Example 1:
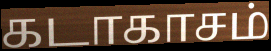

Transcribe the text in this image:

கடாகாசம்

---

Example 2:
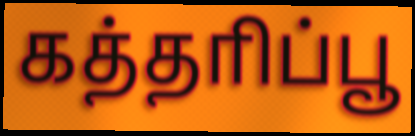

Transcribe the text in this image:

கத்தரிப்பூ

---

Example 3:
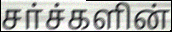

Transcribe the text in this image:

சர்ச்களின்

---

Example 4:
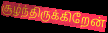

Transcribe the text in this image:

சூழ்ந்திருக்கிறேன்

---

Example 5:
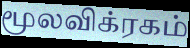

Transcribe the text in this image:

மூலவிக்ரகம்